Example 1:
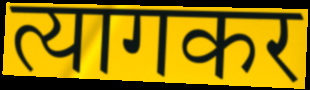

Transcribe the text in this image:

त्यागकर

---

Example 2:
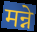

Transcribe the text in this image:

मन्ने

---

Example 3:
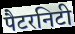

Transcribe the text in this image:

पैटरनिटी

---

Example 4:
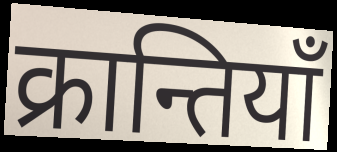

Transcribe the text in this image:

क्रान्तियाँ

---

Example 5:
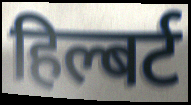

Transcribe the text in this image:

हिल्बर्ट